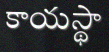
కాయస్థా